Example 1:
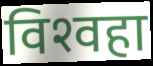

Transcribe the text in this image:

विश्वहा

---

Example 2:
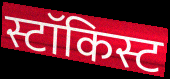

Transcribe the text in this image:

स्टॉकिस्ट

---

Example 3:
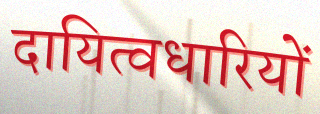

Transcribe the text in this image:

दायित्वधारियों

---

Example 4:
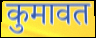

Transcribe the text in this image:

कुमावत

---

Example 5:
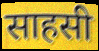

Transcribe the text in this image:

साहसी